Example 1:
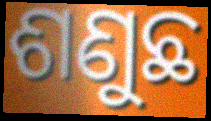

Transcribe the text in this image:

ଶଣୁଛ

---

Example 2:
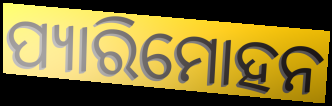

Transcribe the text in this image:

ପ୍ୟାରିମୋହନ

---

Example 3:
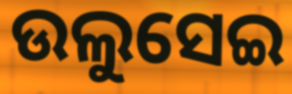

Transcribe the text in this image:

ଉଲୁସେଇ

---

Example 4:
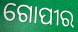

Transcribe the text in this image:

ଗୋପୀର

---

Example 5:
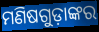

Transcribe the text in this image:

ମଣିଷଗୁଡ଼ାଙ୍କର